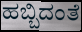
ಹಬ್ಬಿದಂತೆ